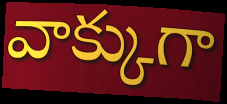
వాక్కుగా